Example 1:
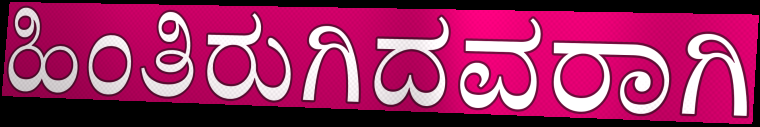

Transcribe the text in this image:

ಹಿಂತಿರುಗಿದವರಾಗಿ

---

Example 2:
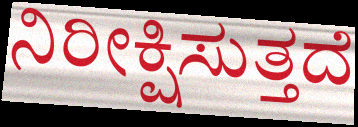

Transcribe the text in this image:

ನಿರೀಕ್ಷಿಸುತ್ತದೆ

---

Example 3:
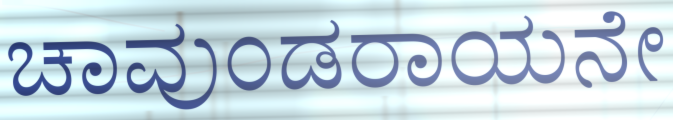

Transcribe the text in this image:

ಚಾವುಂಡರಾಯನೇ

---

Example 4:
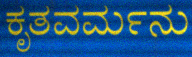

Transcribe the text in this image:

ಕೃತವರ್ಮನು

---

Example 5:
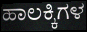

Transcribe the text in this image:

ಹಾಲಕ್ಕಿಗಳ